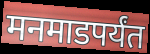
मनमाडपर्यंत